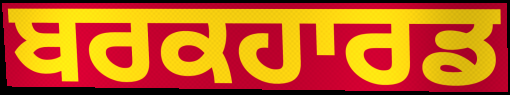
ਬਰਕਹਾਰਡ